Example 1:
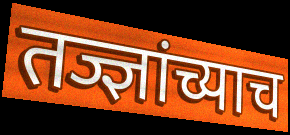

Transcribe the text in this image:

तज्ज्ञांच्याच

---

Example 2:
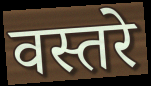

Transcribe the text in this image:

वस्तरे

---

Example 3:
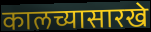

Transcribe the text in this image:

कालच्यासारखे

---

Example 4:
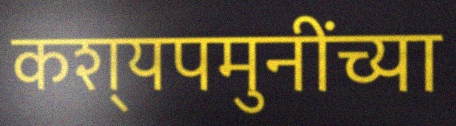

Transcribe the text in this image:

कश्यपमुनींच्या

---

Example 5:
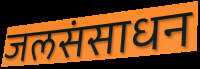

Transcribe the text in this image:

जलसंसाधन